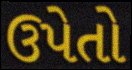
ઉપેતો